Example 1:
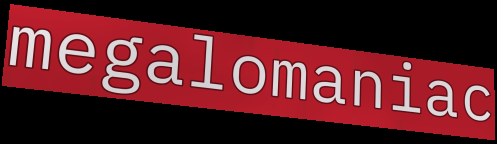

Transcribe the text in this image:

megalomaniac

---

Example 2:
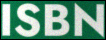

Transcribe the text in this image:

ISBN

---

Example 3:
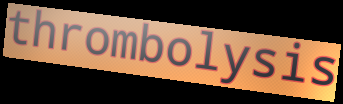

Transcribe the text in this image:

thrombolysis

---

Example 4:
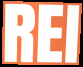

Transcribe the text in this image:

REI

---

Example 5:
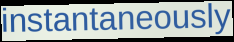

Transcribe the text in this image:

instantaneously